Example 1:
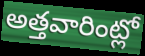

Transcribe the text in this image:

అత్తవారింట్లో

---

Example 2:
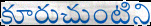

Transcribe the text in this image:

కూరుచుంటిని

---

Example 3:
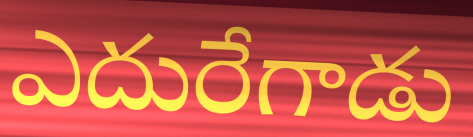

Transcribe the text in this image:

ఎదురేగాడు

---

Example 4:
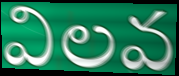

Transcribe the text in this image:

విలవ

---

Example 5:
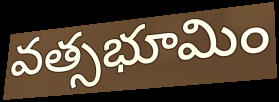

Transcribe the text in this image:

వత్సభూమిం